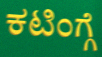
ಕಟಿಂಗ್ಗೆ